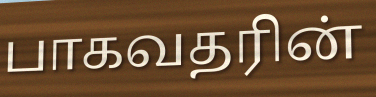
பாகவதரின்